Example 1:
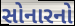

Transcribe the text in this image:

સોનારનો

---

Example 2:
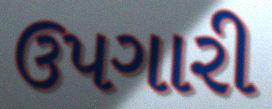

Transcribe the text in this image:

ઉપગારી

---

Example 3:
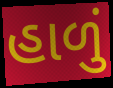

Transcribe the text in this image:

હાળું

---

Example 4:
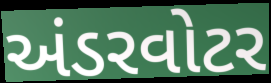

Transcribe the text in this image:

અંડરવોટર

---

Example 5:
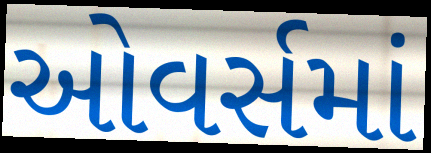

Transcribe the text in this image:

ઓવર્સમાં